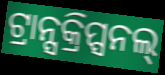
ଟ୍ରାନ୍ସକ୍ରିପ୍ସନଲ୍